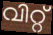
വിറ്റ്